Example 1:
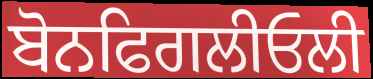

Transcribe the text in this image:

ਬੋਨਫਿਗਲੀਓਲੀ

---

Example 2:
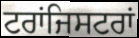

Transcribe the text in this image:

ਟਰਾਂਜਿਸਟਰਾਂ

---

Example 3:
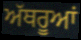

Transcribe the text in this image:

ਅੱਥਰੂਆਂ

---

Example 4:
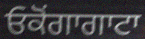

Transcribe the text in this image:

ਓਕੋਂਗਾਗਾਟਾ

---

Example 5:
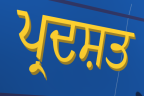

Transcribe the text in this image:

ਪ੍ਰਦਸ਼ਤ